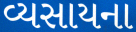
વ્યસાયના